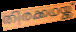
തിരക്കഥയ്ക്ക്